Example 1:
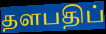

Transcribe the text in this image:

தளபதிப்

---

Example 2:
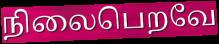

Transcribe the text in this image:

நிலைபெறவே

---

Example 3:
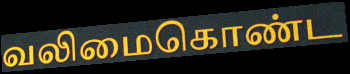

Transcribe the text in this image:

வலிமைகொண்ட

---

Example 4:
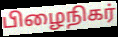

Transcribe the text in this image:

பிழைநிகர்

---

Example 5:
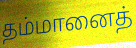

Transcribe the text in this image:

தம்மானைத்